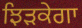
ਝਿੜਕੇਗਾ